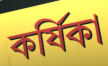
কর্ষিকা